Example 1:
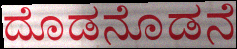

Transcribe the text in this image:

ದೊಡನೊಡನೆ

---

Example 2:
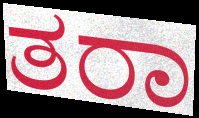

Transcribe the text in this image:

ತರಾ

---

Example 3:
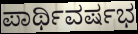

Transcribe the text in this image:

ಪಾರ್ಥಿವರ್ಷಭ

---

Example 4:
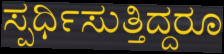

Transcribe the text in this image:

ಸ್ಪರ್ಧಿಸುತ್ತಿದ್ದರೂ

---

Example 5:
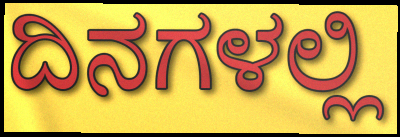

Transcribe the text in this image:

ದಿನಗಳಲ್ಲಿ